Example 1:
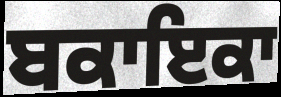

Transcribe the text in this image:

ਬਕਾਇਕਾ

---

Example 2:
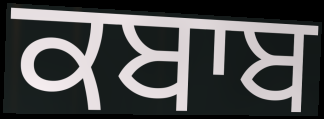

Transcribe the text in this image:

ਕਬਾਬ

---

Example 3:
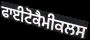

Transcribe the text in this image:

ਫਾਈਟੋਕੈਮੀਕਲਸ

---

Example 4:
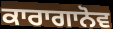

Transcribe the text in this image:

ਕਾਰਾਗਾਨੋਵ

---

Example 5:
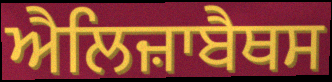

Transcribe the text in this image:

ਐਲਿਜ਼ਾਬੈਥਸ